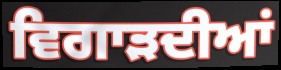
ਵਿਗਾੜਦੀਆਂ